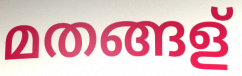
മതങ്ങള്